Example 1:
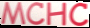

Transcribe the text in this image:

MCHC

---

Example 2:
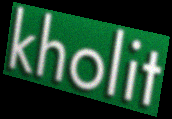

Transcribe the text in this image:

kholit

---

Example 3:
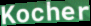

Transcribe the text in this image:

Kocher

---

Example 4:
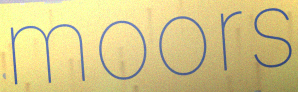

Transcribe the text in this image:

moors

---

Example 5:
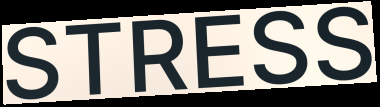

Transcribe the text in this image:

STRESS